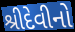
શ્રીદેવીનો